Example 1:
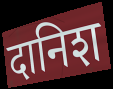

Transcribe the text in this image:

दानिश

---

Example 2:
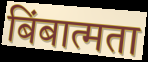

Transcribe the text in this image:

बिंबात्मता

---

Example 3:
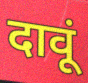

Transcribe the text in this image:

दावूं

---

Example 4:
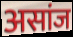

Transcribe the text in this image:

असांज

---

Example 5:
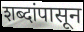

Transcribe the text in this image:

शब्दांपासून